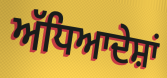
ਅੱਧਿਆਦੇਸ਼ਾਂ